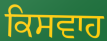
ਕਿਸਵਾਹ